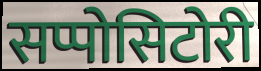
सप्पोसिटोरी